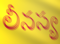
లీనస్య